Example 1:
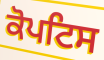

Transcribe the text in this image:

ਕੋਪਟਿਸ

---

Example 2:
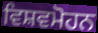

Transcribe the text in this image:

ਵਿਸ਼ਵਮੋਹਨ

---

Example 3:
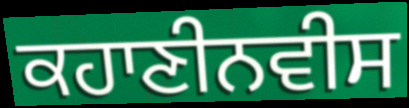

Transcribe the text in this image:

ਕਹਾਣੀਨਵੀਸ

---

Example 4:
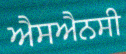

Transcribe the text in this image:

ਐਸਐਨਸੀ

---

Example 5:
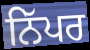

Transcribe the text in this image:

ਨਿੱਪਰ